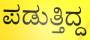
ಪಡುತ್ತಿದ್ದ